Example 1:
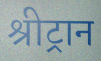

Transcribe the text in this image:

श्रीट्रान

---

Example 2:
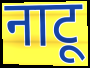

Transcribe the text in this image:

नाटू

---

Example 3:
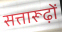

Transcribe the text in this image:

सत्तारूढ़ों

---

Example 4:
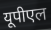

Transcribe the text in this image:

यूपीएल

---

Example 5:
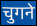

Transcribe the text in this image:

चुगने